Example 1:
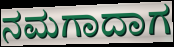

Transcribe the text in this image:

ನಮಗಾದಾಗ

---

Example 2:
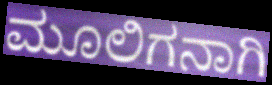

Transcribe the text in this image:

ಮೂಲಿಗನಾಗಿ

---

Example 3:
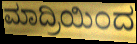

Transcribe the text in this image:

ಮಾದ್ರಿಯಿಂದ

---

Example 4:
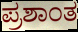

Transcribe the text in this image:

ಪ್ರಶಾಂತ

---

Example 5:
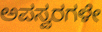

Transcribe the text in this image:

ಅಪಸ್ವರಗಳೇ